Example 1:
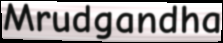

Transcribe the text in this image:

Mrudgandha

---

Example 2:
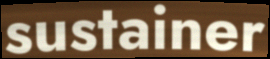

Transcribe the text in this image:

sustainer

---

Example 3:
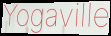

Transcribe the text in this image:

Yogaville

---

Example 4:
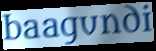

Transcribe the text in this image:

baagundi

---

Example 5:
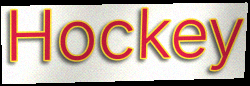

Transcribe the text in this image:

Hockey